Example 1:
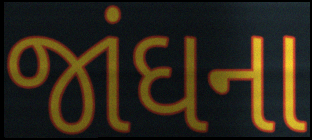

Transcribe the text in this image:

જાંઘના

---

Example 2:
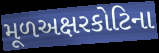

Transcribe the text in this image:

મૂળઅક્ષરકોટિના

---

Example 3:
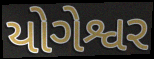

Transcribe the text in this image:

યોગેશ્વર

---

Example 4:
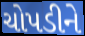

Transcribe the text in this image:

ચોપડીને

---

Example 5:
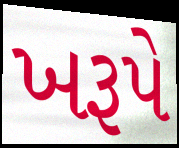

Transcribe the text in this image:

ખરૂપે